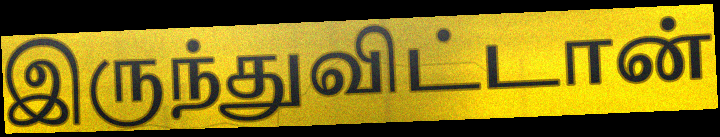
இருந்துவிட்டான்